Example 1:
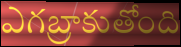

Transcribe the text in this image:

ఎగబ్రాకుతోంది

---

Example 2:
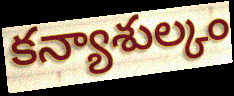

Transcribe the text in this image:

కన్యాశుల్కం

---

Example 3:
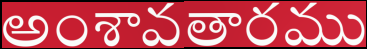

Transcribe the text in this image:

అంశావతారము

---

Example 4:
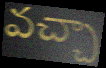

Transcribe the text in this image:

వచ్చా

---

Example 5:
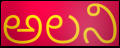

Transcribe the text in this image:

అలని